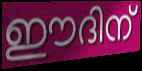
ഈദിന്